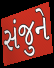
સંજુને